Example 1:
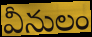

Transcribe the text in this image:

వీనులం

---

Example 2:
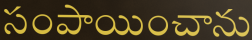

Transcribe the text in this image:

సంపాయించాను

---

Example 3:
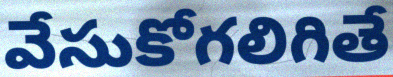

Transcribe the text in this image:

వేసుకోగలిగితే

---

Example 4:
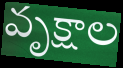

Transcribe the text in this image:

వృక్షాల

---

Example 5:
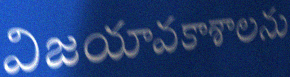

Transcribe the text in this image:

విజయావకాశాలను